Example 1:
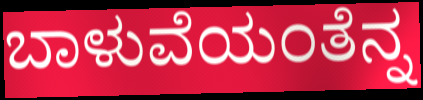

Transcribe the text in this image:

ಬಾಳುವೆಯಂತೆನ್ನ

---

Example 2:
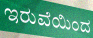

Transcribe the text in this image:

ಇರುವೆಯಿಂದ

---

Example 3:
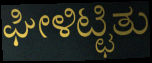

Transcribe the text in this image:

ಘೀಳಿಟ್ಟಿತು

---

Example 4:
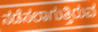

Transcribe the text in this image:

ನಡೆಸಲಾಗುತ್ತಿರುವ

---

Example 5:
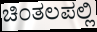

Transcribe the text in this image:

ಚಿಂತಲಪಲ್ಲಿ